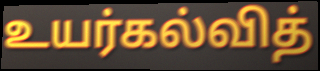
உயர்கல்வித்